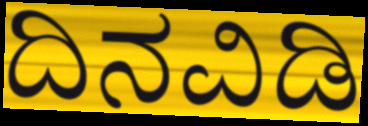
ದಿನವಿಡಿ